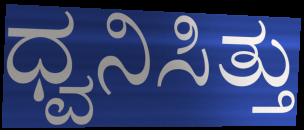
ಧ್ವನಿಸಿತ್ತು